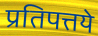
प्रतिपत्तये